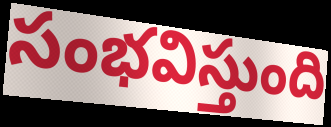
సంభవిస్తుంది